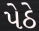
પેઠે